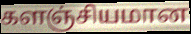
களஞ்சியமான